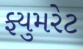
ફ્યુમરેટ